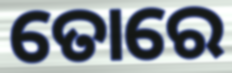
ତୋରେ